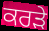
ਕਰੜੇ